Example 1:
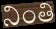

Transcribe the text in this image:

నింతి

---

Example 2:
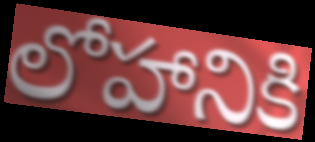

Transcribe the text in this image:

లోహానికి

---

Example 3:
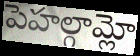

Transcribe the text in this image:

పెహల్గామ్లో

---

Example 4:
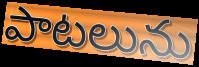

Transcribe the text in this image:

పాటలును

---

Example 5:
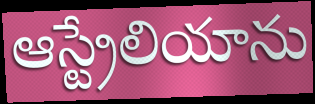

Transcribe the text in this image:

ఆస్ట్రేలియాను